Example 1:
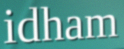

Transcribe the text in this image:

idham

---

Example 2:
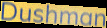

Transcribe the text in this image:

Dushman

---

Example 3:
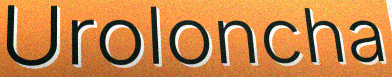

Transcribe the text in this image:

Uroloncha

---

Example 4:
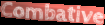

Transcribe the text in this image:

Combative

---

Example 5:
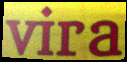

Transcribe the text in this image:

vira